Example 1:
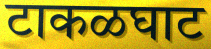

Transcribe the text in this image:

टाकळघाट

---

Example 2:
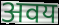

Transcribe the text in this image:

अवय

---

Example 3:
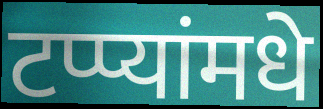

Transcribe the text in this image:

टप्प्यांमधे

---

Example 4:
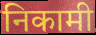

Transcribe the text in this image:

निकामी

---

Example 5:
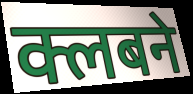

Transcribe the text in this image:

क्लबने